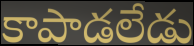
కాపాడలేడు